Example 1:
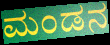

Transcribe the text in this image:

ಮಂಡನ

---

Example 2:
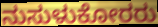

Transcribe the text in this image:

ನುಸುಳುಕೋರರು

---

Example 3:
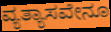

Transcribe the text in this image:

ವ್ಯತ್ಯಾಸವೇನೂ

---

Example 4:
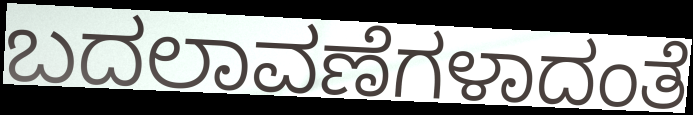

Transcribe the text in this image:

ಬದಲಾವಣೆಗಳಾದಂತೆ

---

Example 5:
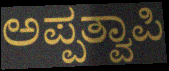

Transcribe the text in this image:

ಅಪ್ಪತ್ವಾಪಿ